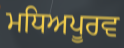
ਮਧਿਅਪੂਰਵ